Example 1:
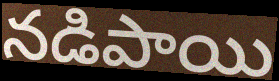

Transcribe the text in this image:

నడిపాయి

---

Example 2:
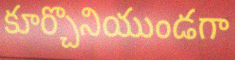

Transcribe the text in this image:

కూర్చొనియుండగా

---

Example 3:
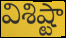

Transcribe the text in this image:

విశిష్టా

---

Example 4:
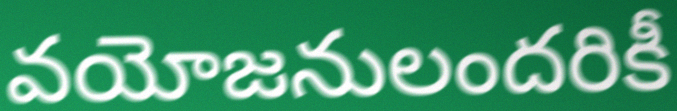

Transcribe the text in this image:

వయోజనులందరికీ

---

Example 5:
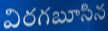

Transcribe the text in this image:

విరగబూసిన